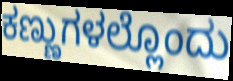
ಕಣ್ಣುಗಳಲ್ಲೊಂದು